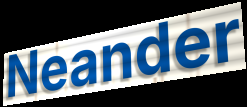
Neander